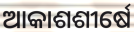
ଆକାଶଶୀର୍ଷେ